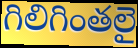
గిలిగింతలై